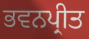
ਭਵਨਪ੍ਰੀਤ